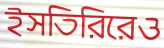
ইসতিরিরেও